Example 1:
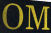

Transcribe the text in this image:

OM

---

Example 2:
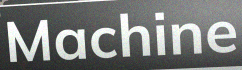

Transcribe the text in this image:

Machine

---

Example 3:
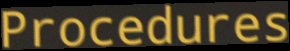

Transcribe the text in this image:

Procedures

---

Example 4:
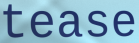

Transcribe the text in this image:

tease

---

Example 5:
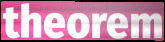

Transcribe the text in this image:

theorem